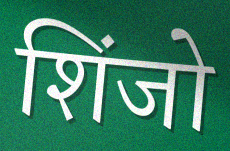
शिंजो